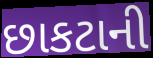
છાકટાની